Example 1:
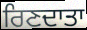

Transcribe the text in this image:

ਰਿਣਦਾਤਾ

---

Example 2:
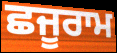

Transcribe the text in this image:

ਛਜੂਰਾਮ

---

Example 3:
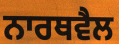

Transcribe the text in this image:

ਨਾਰਥਵੈਲ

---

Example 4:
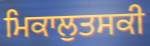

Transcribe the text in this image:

ਮਿਕਾਲੁਤਸਕੀ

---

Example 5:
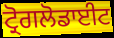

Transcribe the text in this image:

ਟ੍ਰੋਗਲੋਡਾਈਟ